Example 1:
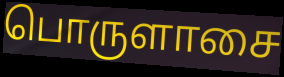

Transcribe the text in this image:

பொருளாசை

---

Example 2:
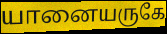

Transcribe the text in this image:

யானையருகே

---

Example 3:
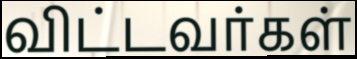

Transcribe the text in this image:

விட்டவர்கள்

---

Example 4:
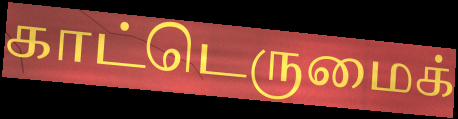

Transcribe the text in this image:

காட்டெருமைக்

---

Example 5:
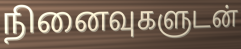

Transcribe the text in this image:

நினைவுகளுடன்